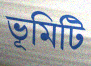
ভূমিটি